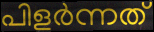
പിളർന്നത്